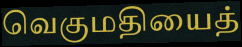
வெகுமதியைத்